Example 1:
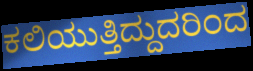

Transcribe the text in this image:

ಕಲಿಯುತ್ತಿದ್ದುದರಿಂದ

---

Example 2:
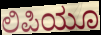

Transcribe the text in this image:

ಲಿಪಿಯೂ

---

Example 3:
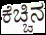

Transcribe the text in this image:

ಕೆಚ್ಚಿನ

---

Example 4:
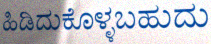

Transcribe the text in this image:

ಹಿಡಿದುಕೊಳ್ಳಬಹುದು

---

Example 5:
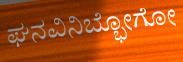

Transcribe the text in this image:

ಘನವಿನಿಬ್ಭೋಗೋ